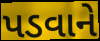
પડવાને